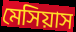
মেসিয়াস